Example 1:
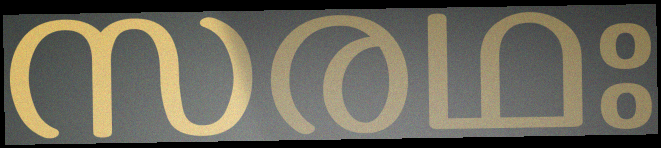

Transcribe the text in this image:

സരഥഃ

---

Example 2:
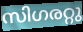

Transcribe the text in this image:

സിഗരറ്റു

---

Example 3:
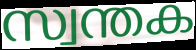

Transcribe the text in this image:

സ്വന്തക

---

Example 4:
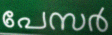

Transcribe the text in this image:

പേസർ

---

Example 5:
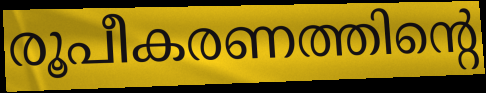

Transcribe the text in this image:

രൂപീകരണത്തിന്റെ